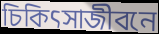
চিকিৎসাজীবনে